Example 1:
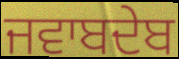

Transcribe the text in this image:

ਜਵਾਬਦੇਬ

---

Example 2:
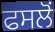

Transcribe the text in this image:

ਫਸਲੋਂ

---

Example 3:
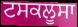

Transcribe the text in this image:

ਟਸਕਲੂਸਾ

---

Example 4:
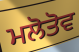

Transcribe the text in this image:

ਮਲੋਤੋਵ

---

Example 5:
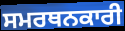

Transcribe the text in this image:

ਸਮਰਥਨਕਾਰੀ